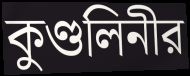
কুণ্ডলিনীর